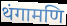
थंगामणि